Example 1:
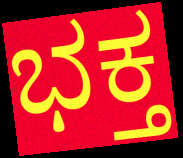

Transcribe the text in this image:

ಭಕ್ತ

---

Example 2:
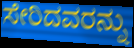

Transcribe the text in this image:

ಸೇರಿದವರನ್ನು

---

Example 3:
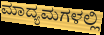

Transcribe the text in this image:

ಮಾದ್ಯಮಗಳಲ್ಲಿ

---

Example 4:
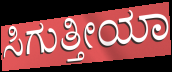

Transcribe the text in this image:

ಸಿಗುತ್ತೀಯಾ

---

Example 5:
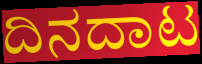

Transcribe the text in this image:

ದಿನದಾಟ